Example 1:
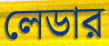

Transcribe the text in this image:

লেডার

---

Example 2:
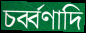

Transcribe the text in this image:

চর্ব্বণাদি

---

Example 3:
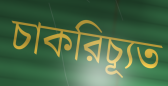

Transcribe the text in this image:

চাকরিচ্যূত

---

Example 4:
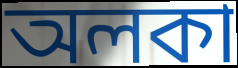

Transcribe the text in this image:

অলকা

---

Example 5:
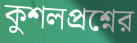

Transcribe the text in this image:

কুশলপ্রশ্নের